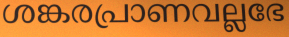
ശങ്കരപ്രാണവല്ലഭേ